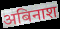
अबिनाश